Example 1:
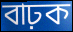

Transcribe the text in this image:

বাঢ়ক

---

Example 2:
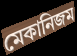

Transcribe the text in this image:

মেকানিজম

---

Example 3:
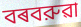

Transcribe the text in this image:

বৰবৰুৱা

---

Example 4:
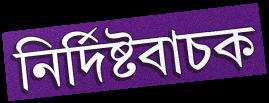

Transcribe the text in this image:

নিৰ্দিষ্টবাচক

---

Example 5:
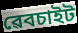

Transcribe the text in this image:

ৱেবচাইট